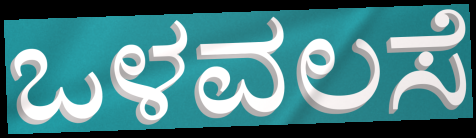
ಒಳವಲಸೆ